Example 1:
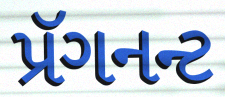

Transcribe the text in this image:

પ્રૅગનન્ટ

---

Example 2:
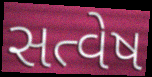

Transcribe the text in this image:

સત્વેષ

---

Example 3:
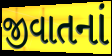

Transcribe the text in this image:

જીવાતનાં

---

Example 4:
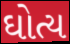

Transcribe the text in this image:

ઘોત્ય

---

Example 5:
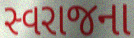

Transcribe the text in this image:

સ્વરાજના